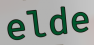
elde